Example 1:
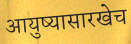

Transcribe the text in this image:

आयुष्यासारखेच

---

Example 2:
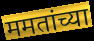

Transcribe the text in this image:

ममतांच्या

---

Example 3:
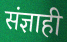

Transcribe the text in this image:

संज्ञाही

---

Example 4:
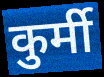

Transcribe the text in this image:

कुर्मी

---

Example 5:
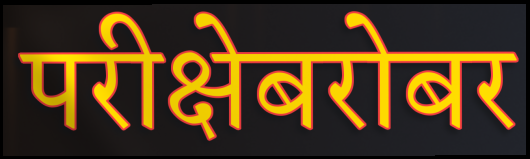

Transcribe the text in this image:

परीक्षेबरोबर